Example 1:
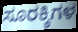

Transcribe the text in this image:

ಸೂರಕ್ಕಿಗಳ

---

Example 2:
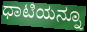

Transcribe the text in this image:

ಧಾಟಿಯನ್ನೂ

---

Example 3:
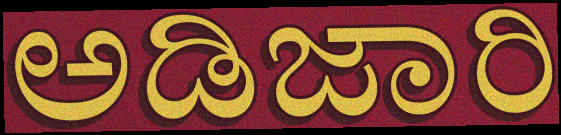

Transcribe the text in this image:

ಅಡಿಜಾರಿ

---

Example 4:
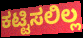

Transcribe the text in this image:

ಕಟ್ಟಿಸಲಿಲ್ಲ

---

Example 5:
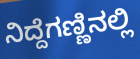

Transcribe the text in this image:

ನಿದ್ದೆಗಣ್ಣಿನಲ್ಲಿ